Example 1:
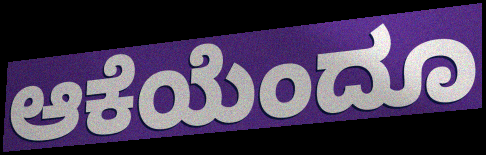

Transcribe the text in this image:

ಆಕೆಯೆಂದೂ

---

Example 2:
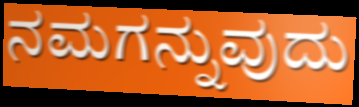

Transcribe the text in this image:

ನಮಗನ್ನುವುದು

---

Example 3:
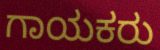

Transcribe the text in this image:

ಗಾಯಕರು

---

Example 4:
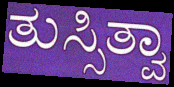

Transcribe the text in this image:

ತುಸ್ಸಿತ್ವಾ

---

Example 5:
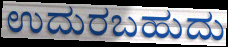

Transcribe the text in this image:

ಉದುರಬಹುದು